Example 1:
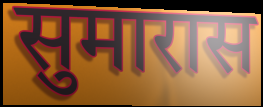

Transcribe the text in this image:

सुमारास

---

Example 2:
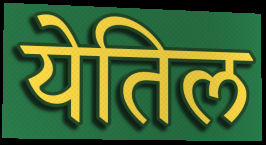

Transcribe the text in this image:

येतिल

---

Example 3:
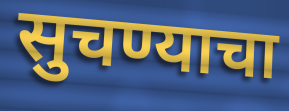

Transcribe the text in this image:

सुचण्याचा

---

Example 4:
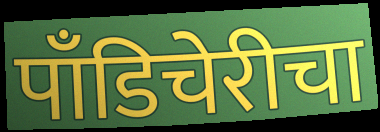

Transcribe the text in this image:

पाँडिचेरीचा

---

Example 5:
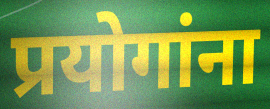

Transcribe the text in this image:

प्रयोगांना